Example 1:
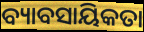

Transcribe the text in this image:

ବ୍ୟାବସାୟିକତା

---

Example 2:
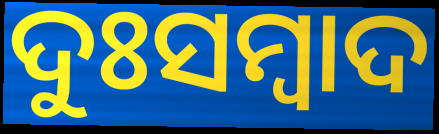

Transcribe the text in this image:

ଦୁଃସମ୍ୱାଦ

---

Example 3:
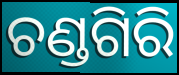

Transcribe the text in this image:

ଚଣ୍ଡଗିରି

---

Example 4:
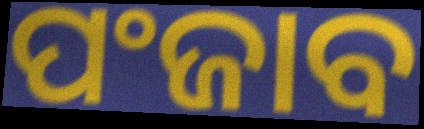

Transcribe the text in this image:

ପଂଜାବ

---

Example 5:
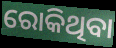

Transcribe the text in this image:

ରୋକିଥିବା